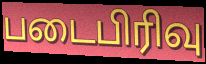
படைபிரிவு